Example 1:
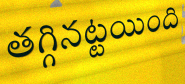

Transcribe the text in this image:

తగ్గినట్టయింది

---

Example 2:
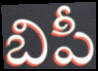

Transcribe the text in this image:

బిపీ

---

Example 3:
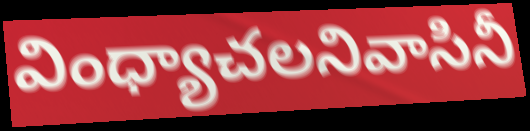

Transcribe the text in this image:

వింధ్యాచలనివాసినీ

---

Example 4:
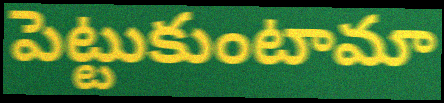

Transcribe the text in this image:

పెట్టుకుంటామా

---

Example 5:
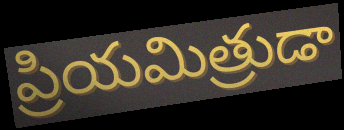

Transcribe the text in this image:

ప్రియమిత్రుడా